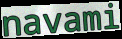
navami